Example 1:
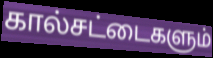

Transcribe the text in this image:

கால்சட்டைகளும்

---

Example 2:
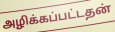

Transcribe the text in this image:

அழிக்கப்பட்டதன்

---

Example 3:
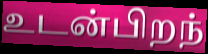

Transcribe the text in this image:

உடன்பிறந்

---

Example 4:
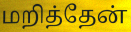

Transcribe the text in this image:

மறித்தேன்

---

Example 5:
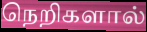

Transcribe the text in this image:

நெறிகளால்